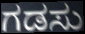
ಗಡಸು